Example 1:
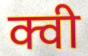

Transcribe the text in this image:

क्वी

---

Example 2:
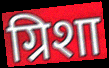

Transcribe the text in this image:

ग्रिशा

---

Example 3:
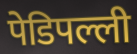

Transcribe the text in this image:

पेडिपल्ली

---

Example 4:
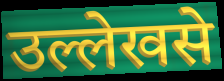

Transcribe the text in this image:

उल्लेखसे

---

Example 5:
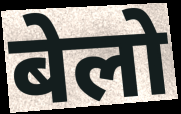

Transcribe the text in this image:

बेलो